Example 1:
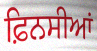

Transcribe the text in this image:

ਫ਼ਿਨਸੀਆਂ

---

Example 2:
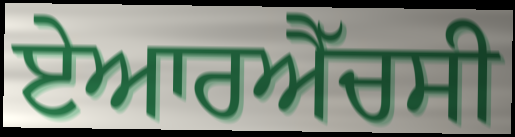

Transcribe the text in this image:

ਏਆਰਐੱਚਸੀ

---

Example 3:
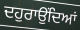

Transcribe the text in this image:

ਦਹੁਰਾਉਂਦਿਆਂ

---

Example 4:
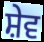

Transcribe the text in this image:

ਸ਼ੇਵ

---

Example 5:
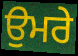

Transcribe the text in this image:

ਉਮਰੇ